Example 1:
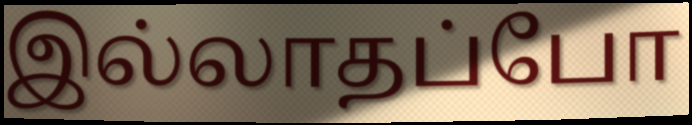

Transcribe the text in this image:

இல்லாதப்போ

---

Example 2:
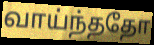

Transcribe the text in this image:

வாய்ந்ததோ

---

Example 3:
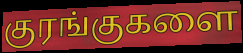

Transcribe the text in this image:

குரங்குகளை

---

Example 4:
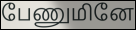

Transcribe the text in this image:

பேணுமினே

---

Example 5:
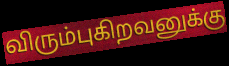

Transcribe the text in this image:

விரும்புகிறவனுக்கு